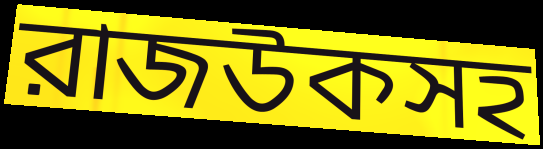
রাজউকসহ